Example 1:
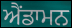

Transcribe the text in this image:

ਐਂਡਾਮਨ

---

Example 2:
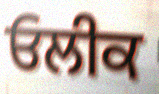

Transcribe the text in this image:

ਓਲੀਕ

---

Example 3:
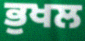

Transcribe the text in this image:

ਭੁਖਲ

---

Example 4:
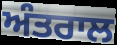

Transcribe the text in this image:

ਅੰਤਰਾਲ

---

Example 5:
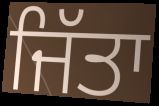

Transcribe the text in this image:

ਜਿੱਤਾ